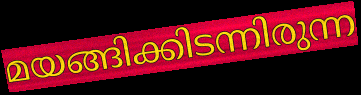
മയങ്ങിക്കിടന്നിരുന്ന